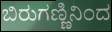
ಬಿರುಗಣ್ಣಿನಿಂದ